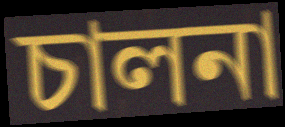
চালনা